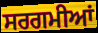
ਸਰਗਮੀਆਂ